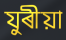
যুৰীয়া